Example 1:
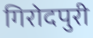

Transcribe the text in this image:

गिरोदपुरी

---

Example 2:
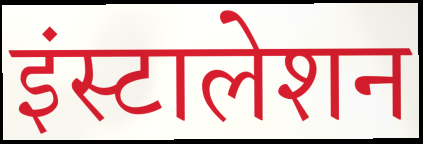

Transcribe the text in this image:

इंस्टालेशन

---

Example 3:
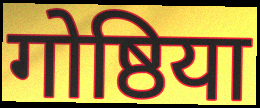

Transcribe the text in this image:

गोष्ठिया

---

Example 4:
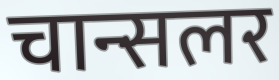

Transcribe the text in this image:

चान्सलर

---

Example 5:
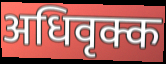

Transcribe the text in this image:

अधिवृक्क